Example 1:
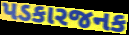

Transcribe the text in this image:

પડકારજનક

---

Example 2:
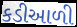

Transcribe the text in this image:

કડીઆળી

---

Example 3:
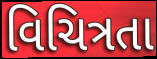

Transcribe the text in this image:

વિચિત્રતા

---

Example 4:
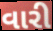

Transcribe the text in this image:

વારી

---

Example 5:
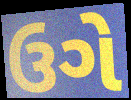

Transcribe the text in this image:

ઉગે